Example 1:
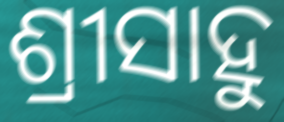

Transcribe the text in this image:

ଶ୍ରୀସାହୁ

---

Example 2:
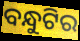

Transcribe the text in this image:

ବନ୍ଧୁଟିର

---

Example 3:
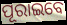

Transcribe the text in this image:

ପୂରାଇବେ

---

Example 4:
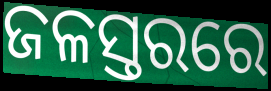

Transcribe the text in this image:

ଜଳସ୍ତରରେ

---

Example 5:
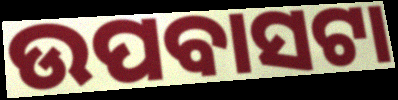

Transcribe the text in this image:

ଉପବାସଟା